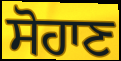
ਸੋਹਾਣ